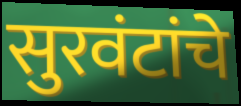
सुरवंटांचे